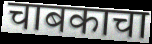
चाबकाचा